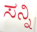
ಸನ್ನಿ